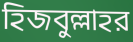
হিজবুল্লাহর